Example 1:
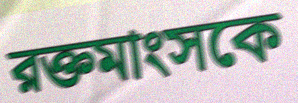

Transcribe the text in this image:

রক্তমাংসকে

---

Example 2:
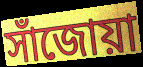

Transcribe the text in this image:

সাঁজোয়া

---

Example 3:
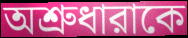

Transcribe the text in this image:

অশ্রুধারাকে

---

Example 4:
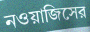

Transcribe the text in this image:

নওয়াজিসের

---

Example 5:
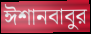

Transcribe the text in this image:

ঈশানবাবুর